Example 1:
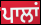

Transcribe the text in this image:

ਪਾਲਾਂ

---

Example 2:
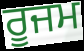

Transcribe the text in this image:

ਰੂਜਮ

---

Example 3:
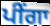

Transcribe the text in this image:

ਪੀਂਗਾ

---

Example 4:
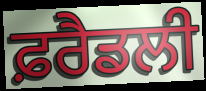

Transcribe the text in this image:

ਫ਼ਰੈਡਲੀ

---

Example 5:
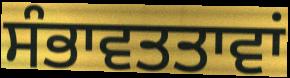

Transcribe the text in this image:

ਸੰਭਾਵਤਤਾਵਾਂ